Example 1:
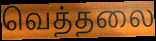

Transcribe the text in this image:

வெத்தலை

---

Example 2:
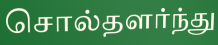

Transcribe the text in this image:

சொல்தளர்ந்து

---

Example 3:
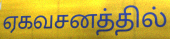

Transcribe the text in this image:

ஏகவசனத்தில்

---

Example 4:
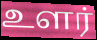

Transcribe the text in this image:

உளர்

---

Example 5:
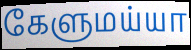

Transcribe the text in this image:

கேளுமய்யா